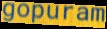
gopuram